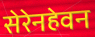
सेरेनहेवन